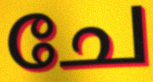
ചേ